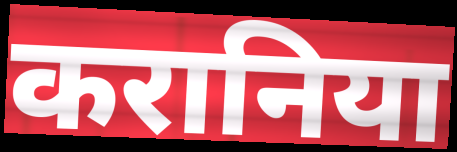
करानिया